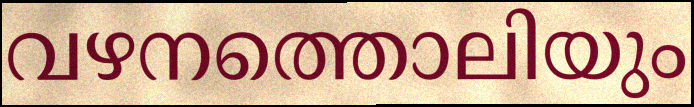
വഴനത്തൊലിയും